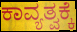
ಕಾವ್ಯತ್ವಕ್ಕೆ